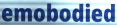
emobodied